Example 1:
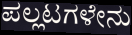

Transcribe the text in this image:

ಪಲ್ಲಟಗಳೇನು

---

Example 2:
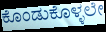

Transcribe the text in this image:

ಕೊಂಡುಕೊಳ್ಳಲೇ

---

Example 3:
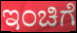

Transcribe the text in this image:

ಇಂಚಿಗೆ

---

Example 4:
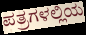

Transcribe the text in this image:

ಪತ್ರಗಳಲ್ಲಿಯ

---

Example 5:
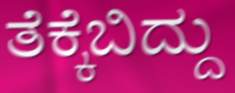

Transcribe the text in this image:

ತೆಕ್ಕೆಬಿದ್ದು